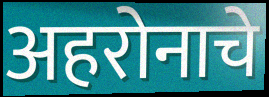
अहरोनाचे